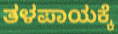
ತಳಪಾಯಕ್ಕೆ